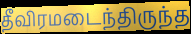
தீவிரமடைந்திருந்த